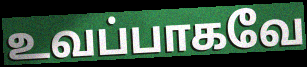
உவப்பாகவே